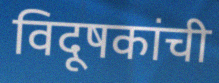
विदूषकांची